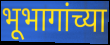
भूभागांच्या